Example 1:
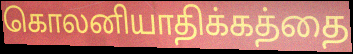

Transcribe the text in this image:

கொலனியாதிக்கத்தை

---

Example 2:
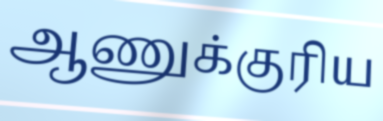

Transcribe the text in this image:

ஆணுக்குரிய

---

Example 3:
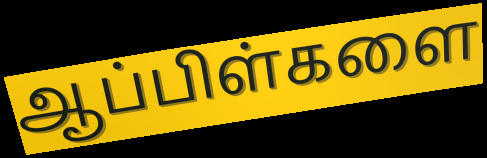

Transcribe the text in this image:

ஆப்பிள்களை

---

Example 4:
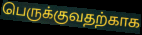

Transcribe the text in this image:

பெருக்குவதற்காக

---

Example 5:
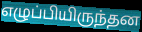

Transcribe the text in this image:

எழுப்பியிருந்தன